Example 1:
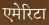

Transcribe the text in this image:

एमेरिटा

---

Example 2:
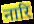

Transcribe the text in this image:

नारि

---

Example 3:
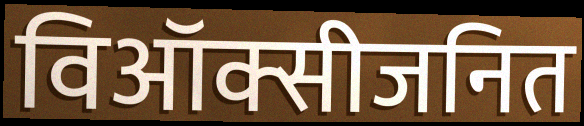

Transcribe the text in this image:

विऑक्सीजनित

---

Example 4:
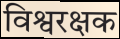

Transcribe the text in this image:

विश्वरक्षक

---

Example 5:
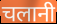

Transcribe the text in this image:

चलानी